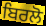
ਬਿਰਲੋ